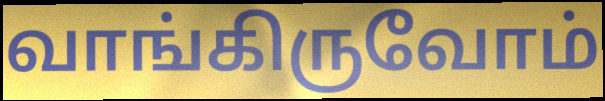
வாங்கிருவோம்